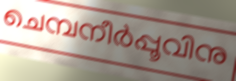
ചെമ്പനീർപ്പൂവിനു